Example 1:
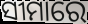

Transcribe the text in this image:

ସୀମାରେ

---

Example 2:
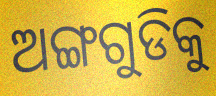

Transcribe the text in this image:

ଅଙ୍ଗଗୁଡିକୁ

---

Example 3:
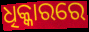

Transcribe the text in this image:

ଧିକ୍କାରରେ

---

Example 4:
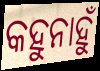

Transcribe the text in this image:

କହୁନାହୁଁ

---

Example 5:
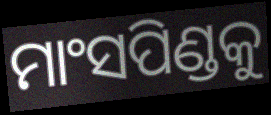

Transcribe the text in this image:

ମାଂସପିଣ୍ଡକୁ